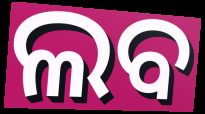
ଲବ